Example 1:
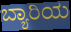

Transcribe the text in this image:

ಬ್ಯಾರಿಯ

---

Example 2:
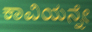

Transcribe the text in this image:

ಕಾವಿಯನ್ನೇ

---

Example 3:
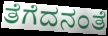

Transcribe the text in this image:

ತೆಗೆದನಂತೆ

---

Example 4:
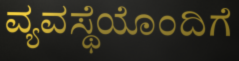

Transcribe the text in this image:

ವ್ಯವಸ್ಥೆಯೊಂದಿಗೆ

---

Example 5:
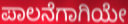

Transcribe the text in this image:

ಪಾಲನೆಗಾಗಿಯೇ